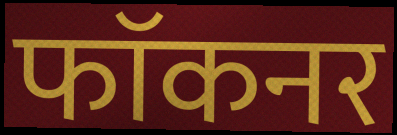
फॉकनर